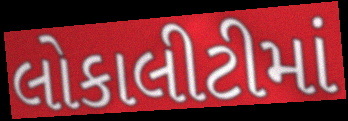
લોકાલીટીમાં